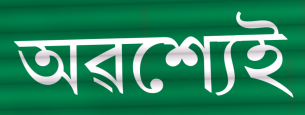
অৱশ্যেই